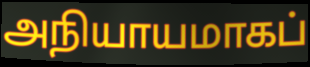
அநியாயமாகப்